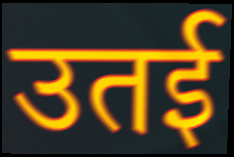
उतई